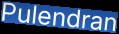
Pulendran